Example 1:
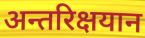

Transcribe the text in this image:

अन्तरिक्षयान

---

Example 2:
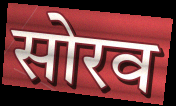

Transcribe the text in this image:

सोरव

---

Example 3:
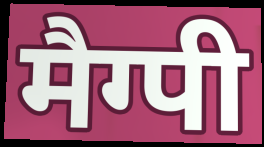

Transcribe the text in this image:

मैग्पी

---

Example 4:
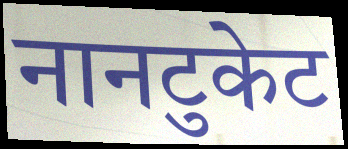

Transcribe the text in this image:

नानटुकेट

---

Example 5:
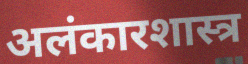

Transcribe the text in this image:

अलंकारशास्त्र